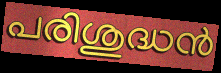
പരിശുദ്ധൻ